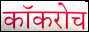
कॉकरोच